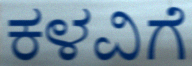
ಕಳವಿಗೆ